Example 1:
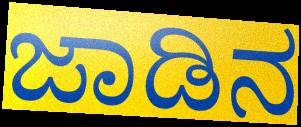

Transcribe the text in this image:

ಜಾಡಿನ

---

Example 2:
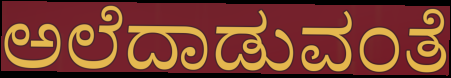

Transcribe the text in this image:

ಅಲೆದಾಡುವಂತೆ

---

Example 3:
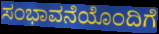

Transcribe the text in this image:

ಸಂಭಾವನೆಯೊಂದಿಗೆ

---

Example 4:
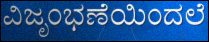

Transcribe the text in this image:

ವಿಜೃಂಭಣೆಯಿಂದಲೆ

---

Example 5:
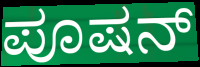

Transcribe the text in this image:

ಪೂಷನ್